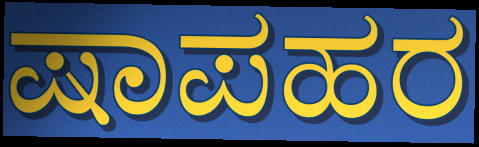
ಷಾಪಹರ